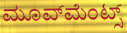
ಮೂವ್‌ಮೆಂಟ್ಸ್